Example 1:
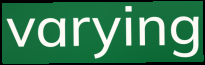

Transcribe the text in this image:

varying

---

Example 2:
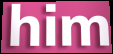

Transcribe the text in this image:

him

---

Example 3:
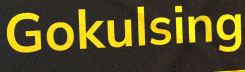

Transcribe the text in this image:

Gokulsing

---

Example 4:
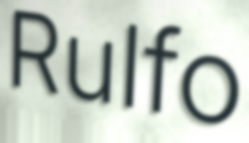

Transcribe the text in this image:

Rulfo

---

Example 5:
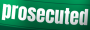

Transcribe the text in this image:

prosecuted